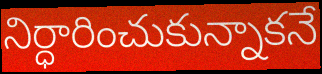
నిర్ధారించుకున్నాకనే